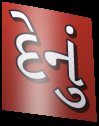
દેનું